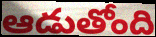
ఆడుతోంది